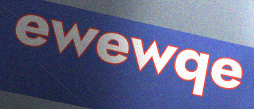
ewewqe